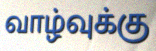
வாழ்வுக்கு